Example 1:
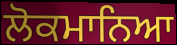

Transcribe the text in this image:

ਲੋਕਮਾਨਿਆ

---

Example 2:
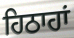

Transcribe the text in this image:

ਹਿਠਾਹਾਂ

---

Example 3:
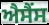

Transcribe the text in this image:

ਐਸੈਂਸ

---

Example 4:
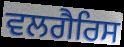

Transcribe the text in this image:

ਵਲਗੈਰਿਸ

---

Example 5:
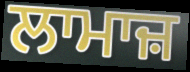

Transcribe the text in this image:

ਲਾਮਾਜ਼